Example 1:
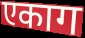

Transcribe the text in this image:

एकाग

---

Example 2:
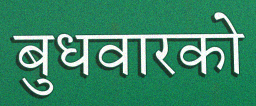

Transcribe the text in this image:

बुधवारको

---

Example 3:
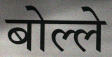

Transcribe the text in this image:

बोल्ले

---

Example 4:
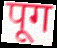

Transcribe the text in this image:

पूग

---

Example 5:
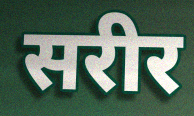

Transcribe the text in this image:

सरीर